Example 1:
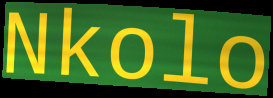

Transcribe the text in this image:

Nkolo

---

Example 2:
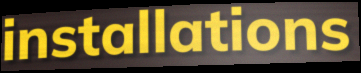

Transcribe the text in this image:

installations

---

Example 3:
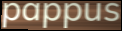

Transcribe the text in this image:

pappus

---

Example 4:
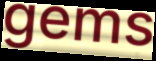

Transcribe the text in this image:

gems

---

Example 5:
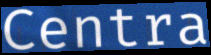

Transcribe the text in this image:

Centra